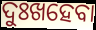
ଦୁଃଖହେବା